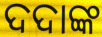
ଦଦାଙ୍କ